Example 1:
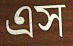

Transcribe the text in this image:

এস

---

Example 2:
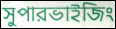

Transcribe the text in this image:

সুপারভাইজিং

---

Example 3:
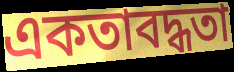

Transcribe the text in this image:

একতাবদ্ধতা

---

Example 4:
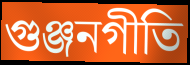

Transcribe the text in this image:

গুঞ্জনগীতি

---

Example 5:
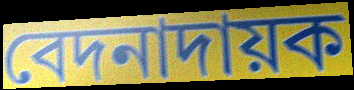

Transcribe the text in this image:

বেদনাদায়ক